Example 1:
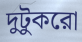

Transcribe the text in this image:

দুটুকরো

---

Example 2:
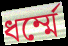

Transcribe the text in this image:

ধর্ম্মে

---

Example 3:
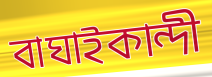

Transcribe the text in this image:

বাঘাইকান্দী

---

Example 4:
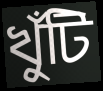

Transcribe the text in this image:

খুঁটি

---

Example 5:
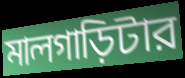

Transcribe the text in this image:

মালগাড়িটার